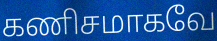
கணிசமாகவே